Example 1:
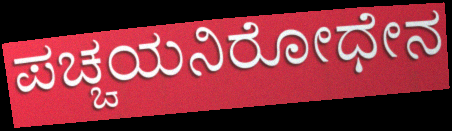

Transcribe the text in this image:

ಪಚ್ಚಯನಿರೋಧೇನ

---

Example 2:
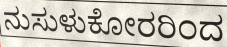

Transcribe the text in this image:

ನುಸುಳುಕೋರರಿಂದ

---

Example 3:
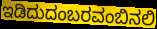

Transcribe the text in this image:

ಇಡಿದುದಂಬರವಂಬಿನಲಿ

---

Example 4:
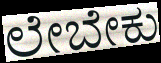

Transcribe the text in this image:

ಲೇಬೇಕು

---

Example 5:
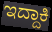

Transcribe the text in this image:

ಇದ್ದಾಕಿ